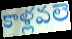
కాళ్లవలె